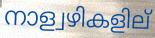
നാള്വഴികളില്